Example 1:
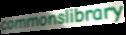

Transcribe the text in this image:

commonslibrary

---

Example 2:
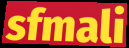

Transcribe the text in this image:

sfmali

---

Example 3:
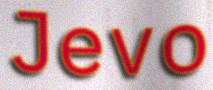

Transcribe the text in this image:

Jevo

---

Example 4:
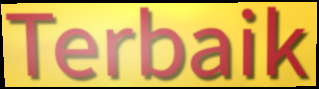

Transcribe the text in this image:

Terbaik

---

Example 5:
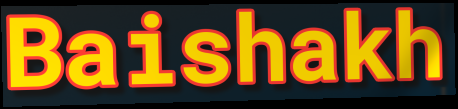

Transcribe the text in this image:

Baishakh